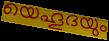
യെഹൂദയും